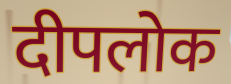
दीपलोक